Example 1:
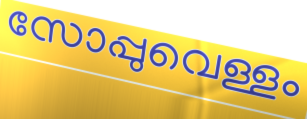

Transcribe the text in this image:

സോപ്പുവെള്ളം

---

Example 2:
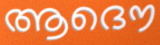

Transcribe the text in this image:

ആദൌ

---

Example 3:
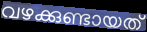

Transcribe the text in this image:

വഴക്കുണ്ടായത്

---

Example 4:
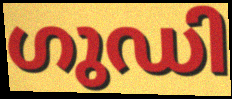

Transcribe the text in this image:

ഗുഡി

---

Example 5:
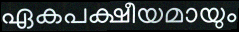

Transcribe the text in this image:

ഏകപക്ഷീയമായും